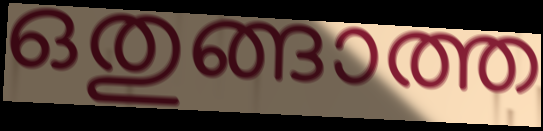
ഒതുങ്ങാത്ത